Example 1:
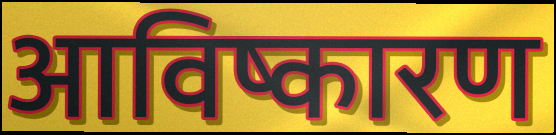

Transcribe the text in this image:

आविष्कारण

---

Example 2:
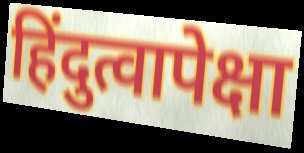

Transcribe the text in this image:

हिंदुत्वापेक्षा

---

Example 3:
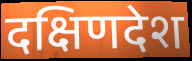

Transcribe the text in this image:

दक्षिणदेश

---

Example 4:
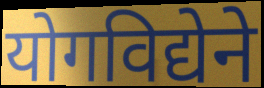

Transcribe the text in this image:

योगविद्येने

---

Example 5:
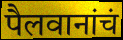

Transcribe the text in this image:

पैलवानांचं